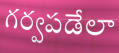
గర్వపడేలా